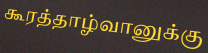
கூரத்தாழ்வானுக்கு